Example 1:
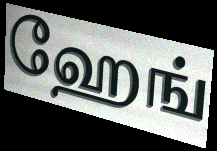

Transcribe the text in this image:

ஹேங்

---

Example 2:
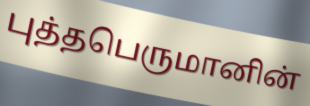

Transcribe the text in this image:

புத்தபெருமானின்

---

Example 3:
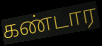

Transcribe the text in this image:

கண்டார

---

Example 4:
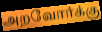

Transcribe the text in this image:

அறவோர்க்கு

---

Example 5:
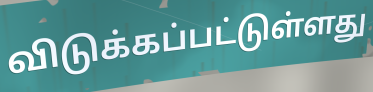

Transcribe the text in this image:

விடுக்கப்பட்டுள்ளது